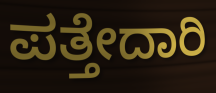
ಪತ್ತೇದಾರಿ